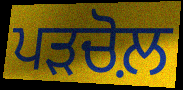
ਪੜਚੋਲ਼